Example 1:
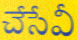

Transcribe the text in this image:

చేసేవీ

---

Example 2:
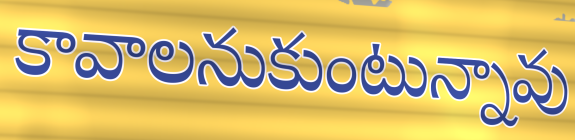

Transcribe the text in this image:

కావాలనుకుంటున్నావు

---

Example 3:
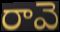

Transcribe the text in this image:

రావె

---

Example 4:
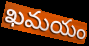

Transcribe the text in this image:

ఖమయం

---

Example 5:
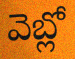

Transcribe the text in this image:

వెబ్లో